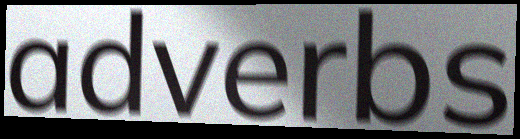
adverbs